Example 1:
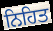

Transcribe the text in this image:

ਨਿਹਿਤ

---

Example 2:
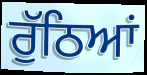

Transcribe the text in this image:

ਰੁੱਠਿਆਂ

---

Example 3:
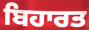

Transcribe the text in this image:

ਬਿਹਾਰਤ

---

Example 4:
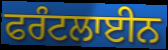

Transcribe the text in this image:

ਫਰੰਟਲਾਈਨ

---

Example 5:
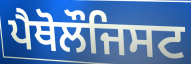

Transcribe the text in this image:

ਪੈਥੋਲੌਜਿਸਟ